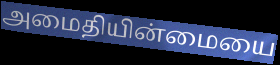
அமைதியின்மையை